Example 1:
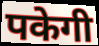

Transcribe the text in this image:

पकेगी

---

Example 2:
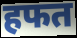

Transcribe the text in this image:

हफत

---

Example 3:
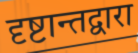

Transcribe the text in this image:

दृष्टान्तद्वारा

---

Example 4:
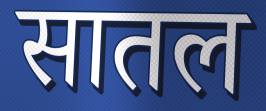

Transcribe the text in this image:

सातल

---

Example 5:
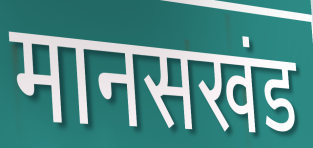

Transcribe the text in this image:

मानसखंड